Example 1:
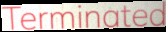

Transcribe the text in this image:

Terminated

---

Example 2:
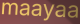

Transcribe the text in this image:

maayaa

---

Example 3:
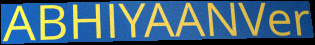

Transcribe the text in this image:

ABHIYAANVer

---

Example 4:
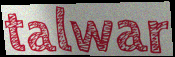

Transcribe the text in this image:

talwar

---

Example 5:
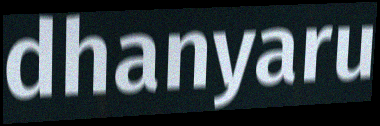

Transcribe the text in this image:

dhanyaru